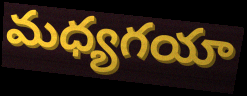
మధ్యగయా